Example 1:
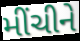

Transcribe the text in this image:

મીંચીને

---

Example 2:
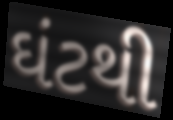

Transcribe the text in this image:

ઘંટથી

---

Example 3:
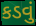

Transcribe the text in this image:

કડવું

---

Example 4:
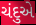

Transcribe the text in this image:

ચંદુએ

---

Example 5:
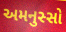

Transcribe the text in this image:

અમનુસ્સો